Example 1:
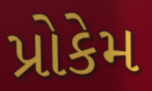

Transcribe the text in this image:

પ્રોકેમ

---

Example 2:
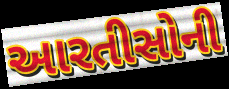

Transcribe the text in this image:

આરતીસોની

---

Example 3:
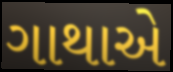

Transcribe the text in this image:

ગાથાએ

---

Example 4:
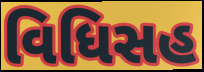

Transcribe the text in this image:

વિધિસહ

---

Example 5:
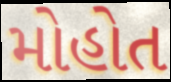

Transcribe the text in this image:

મોહોત